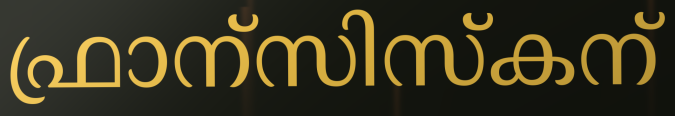
ഫ്രാന്സിസ്കന്